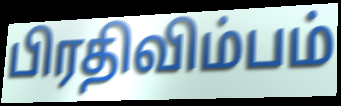
பிரதிவிம்பம்